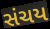
સંચય